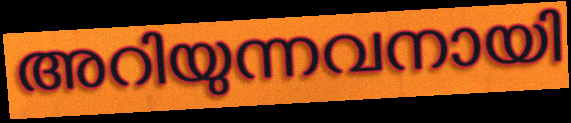
അറിയുന്നവനായി